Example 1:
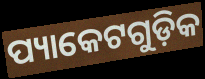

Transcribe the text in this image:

ପ୍ୟାକେଟଗୁଡ଼ିକ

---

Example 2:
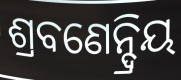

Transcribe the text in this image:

ଶ୍ରବଣେନ୍ଦ୍ରିୟ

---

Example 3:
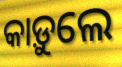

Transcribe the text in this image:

କାଡ଼ୁଲେ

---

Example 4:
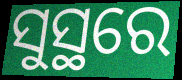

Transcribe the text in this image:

ସୁସ୍ଥରେ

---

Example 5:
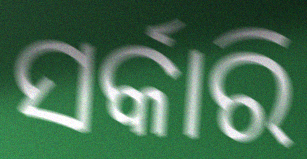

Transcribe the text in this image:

ସର୍କାରି